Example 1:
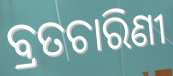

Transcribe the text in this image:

ବ୍ରତଚାରିଣୀ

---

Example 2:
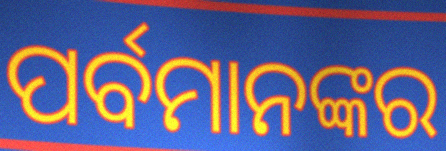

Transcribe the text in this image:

ପର୍ବମାନଙ୍କର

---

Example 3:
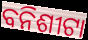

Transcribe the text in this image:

ବନିଶୀଟା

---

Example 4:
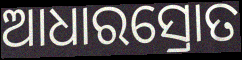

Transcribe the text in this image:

ଆଧାରସ୍ରୋତ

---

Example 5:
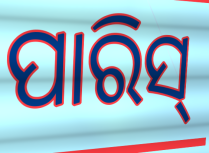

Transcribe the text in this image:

ପାରିସ୍